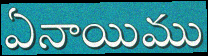
ఏనాయిము